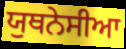
ਯੁਥਨੇਸੀਆ